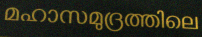
മഹാസമുദ്രത്തിലെ